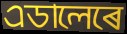
এডালেৰে